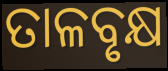
ତାଳବୃକ୍ଷ